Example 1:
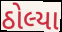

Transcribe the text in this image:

ઠોલ્યા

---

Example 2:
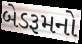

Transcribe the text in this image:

બેડરૂમનો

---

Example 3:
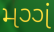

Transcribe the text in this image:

મગ્ગં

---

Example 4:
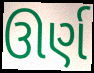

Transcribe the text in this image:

ઊર્ણ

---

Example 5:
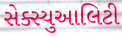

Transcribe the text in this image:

સેક્સ્યુઆલિટી